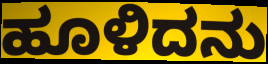
ಹೂಳಿದನು